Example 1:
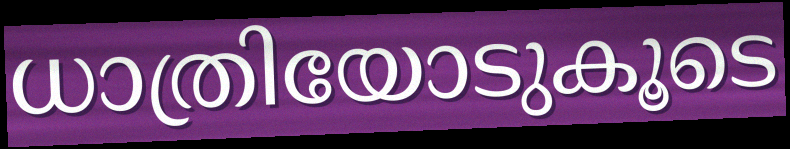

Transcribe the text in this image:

ധാത്രിയോടുകൂടെ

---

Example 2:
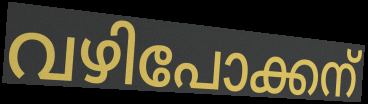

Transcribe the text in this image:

വഴിപോക്കന്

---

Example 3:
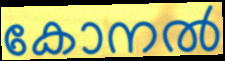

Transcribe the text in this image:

കോനൽ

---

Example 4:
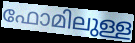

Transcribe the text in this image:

ഫോമിലുള്ള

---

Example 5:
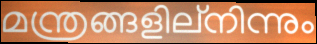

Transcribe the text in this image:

മന്ത്രങ്ങളില്നിന്നും